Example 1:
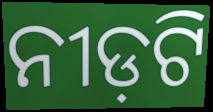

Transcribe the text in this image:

ନୀଡ଼ଟି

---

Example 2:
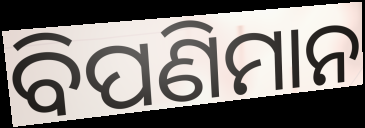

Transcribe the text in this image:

ବିପଣିମାନ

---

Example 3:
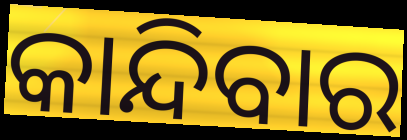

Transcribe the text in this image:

କାନ୍ଦିବାର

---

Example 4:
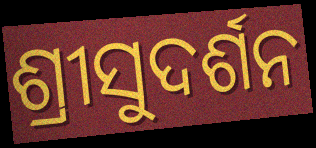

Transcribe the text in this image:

ଶ୍ରୀସୁଦର୍ଶନ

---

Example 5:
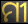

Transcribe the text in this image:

ମୀ